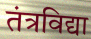
तंत्रविद्या